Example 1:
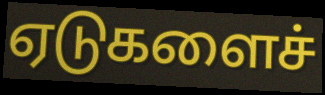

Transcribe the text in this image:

ஏடுகளைச்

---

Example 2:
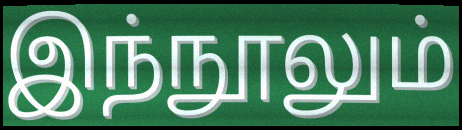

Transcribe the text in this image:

இந்நூலும்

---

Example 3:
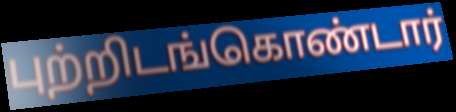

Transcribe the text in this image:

புற்றிடங்கொண்டார்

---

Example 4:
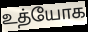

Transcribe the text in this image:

உத்யோக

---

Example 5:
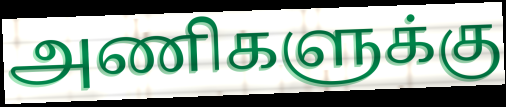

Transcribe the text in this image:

அணிகளுக்கு